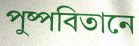
পুষ্পবিতানে